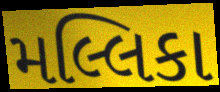
મલ્લિકા